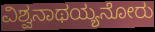
ವಿಶ್ವನಾಥಯ್ಯನೋರು